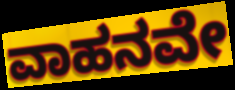
ವಾಹನವೇ